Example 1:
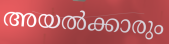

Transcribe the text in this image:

അയൽക്കാരും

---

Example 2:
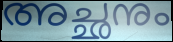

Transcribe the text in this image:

അച്ഛനും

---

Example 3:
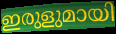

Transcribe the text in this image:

ഇരുളുമായി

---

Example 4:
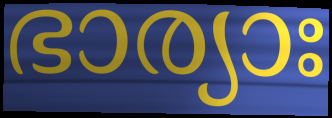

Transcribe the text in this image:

ഭാര്യാഃ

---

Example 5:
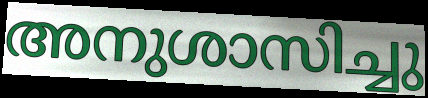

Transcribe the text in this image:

അനുശാസിച്ചു